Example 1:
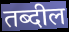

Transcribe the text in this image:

तब्‍दील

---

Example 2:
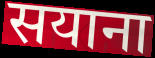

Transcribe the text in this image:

सयाना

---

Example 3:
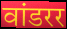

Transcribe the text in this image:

वांडरर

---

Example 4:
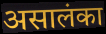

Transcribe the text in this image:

असालंका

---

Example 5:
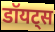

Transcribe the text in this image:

डॉयट्स